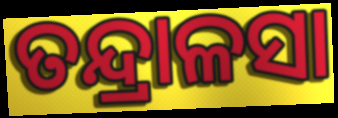
ତନ୍ଦ୍ରାଳସା